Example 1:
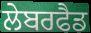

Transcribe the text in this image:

ਲੇਬਰਫੈਡ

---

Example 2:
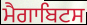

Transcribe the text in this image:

ਮੈਗਾਬਿਟਸ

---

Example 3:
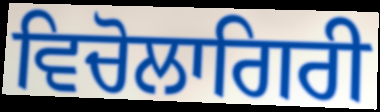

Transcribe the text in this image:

ਵਿਚੋਲਾਗਿਰੀ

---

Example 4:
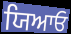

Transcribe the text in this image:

ਯਿਆਓ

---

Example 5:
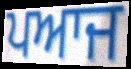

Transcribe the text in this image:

ਪਆਜ